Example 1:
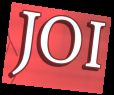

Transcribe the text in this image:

JOI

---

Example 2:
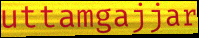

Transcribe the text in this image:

uttamgajjar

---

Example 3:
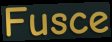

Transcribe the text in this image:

Fusce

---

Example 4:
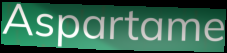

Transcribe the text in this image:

Aspartame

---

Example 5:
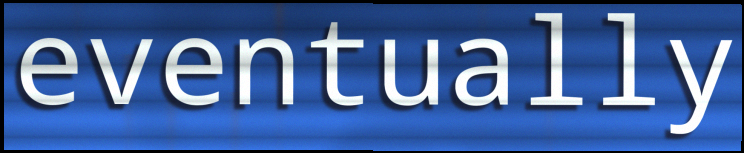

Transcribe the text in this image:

eventually